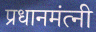
प्रधानमंत्नी